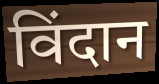
विंदान